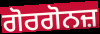
ਗੋਰਗੋਨਜ਼